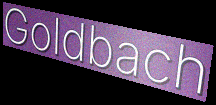
Goldbach